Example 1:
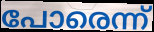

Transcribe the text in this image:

പോരെന്ന്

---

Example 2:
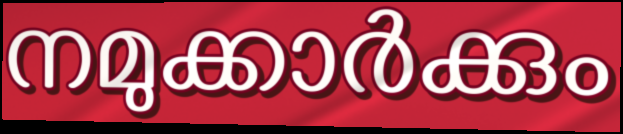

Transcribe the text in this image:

നമുക്കാർക്കും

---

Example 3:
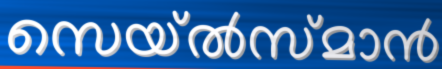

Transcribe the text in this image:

സെയ്ൽസ്മാൻ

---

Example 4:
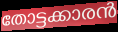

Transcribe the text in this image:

തോട്ടക്കാരൻ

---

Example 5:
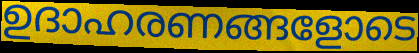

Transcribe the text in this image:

ഉദാഹരണങ്ങളോടെ